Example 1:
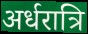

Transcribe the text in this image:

अर्धरात्रि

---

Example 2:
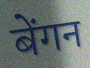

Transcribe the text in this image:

बेंगन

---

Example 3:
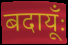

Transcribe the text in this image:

बदायूँः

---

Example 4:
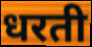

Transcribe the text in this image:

धरती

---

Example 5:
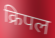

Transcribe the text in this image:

क्रिपल